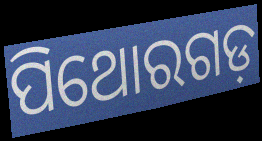
ପିଥୋରଗଡ଼